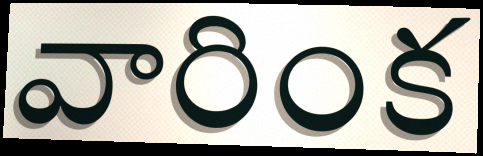
వారింక